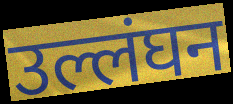
उल्लंघन